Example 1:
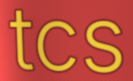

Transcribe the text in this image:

tcs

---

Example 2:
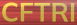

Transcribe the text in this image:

CFTRI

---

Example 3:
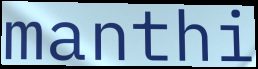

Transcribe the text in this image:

manthi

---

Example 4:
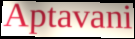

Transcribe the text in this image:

Aptavani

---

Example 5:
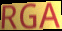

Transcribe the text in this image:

RGA